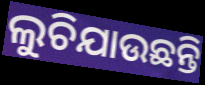
ଲୁଚିଯାଉଛନ୍ତି